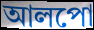
আলপো